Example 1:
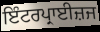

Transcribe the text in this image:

ਇੰਟਰਪ੍ਰਾਈਜ਼ਜ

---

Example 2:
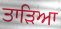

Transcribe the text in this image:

ਤਾੜਿਆ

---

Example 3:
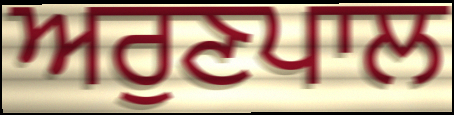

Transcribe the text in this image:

ਅਰੁਣਪਾਲ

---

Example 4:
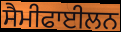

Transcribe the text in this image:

ਸੈਮੀਫਾਈਲਨ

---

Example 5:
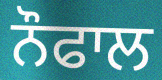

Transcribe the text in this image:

ਨੌਫਾਲ